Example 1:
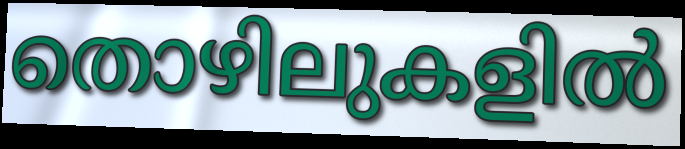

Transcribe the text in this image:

തൊഴിലുകളിൽ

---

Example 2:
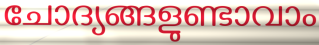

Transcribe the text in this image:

ചോദ്യങ്ങളുണ്ടാവാം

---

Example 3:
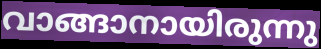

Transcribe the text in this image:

വാങ്ങാനായിരുന്നു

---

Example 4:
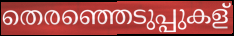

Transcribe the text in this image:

തെരഞ്ഞെടുപ്പുകള്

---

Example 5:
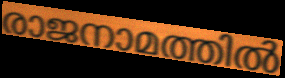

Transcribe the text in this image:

രാജനാമത്തിൽ